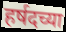
हर्षदच्या